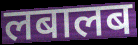
लबालब